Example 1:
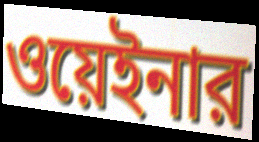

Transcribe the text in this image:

ওয়েইনার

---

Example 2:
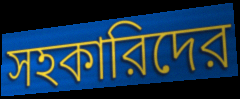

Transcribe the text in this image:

সহকারিদের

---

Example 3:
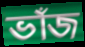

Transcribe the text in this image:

ভাঁজ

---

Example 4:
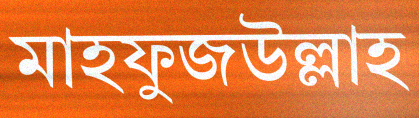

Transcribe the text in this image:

মাহফুজউল্লাহ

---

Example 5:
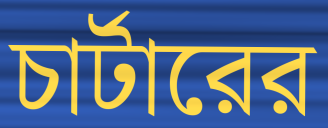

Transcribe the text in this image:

চার্টারের